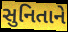
સુનિતાને